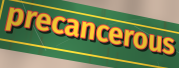
precancerous